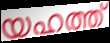
യഹത്ത്